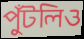
পুঁটলিও